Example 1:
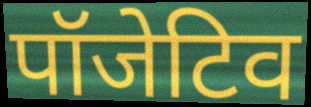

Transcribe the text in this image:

पॉजेटिव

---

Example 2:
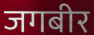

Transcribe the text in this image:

जगबीर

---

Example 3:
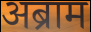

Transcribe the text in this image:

अब्राम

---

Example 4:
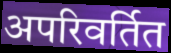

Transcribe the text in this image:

अपरिवर्तित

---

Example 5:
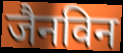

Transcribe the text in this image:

जैनविन